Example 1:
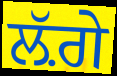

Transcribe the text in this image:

ਲ਼ੱਗੇ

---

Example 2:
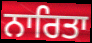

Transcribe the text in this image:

ਨਾਰਿਤਾ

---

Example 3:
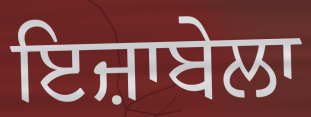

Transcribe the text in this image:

ਇਜ਼ਾਬੇਲਾ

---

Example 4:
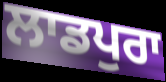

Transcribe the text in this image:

ਲਾਡਪੁਰਾ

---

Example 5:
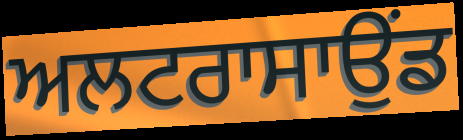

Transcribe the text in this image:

ਅਲਟਰਾਸਾਉਂਡ